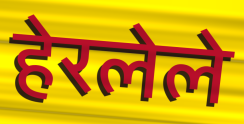
हेरलेले